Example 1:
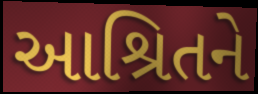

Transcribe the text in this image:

આશ્રિતને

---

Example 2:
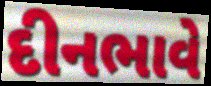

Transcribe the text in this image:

દીનભાવે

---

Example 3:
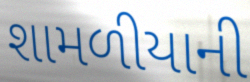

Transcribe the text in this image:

શામળીયાની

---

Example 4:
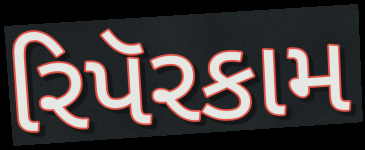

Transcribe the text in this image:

રિપૅરકામ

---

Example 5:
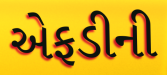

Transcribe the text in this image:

એફડીની